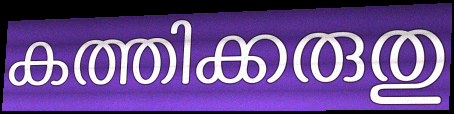
കത്തിക്കരുതു